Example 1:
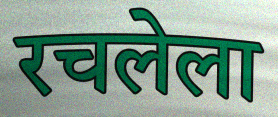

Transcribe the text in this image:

रचलेला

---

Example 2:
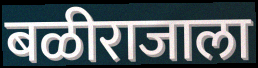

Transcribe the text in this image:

बळीराजाला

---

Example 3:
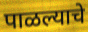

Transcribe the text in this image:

पाळल्याचे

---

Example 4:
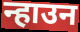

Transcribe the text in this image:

न्हाउन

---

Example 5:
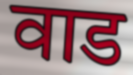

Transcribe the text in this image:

वाड